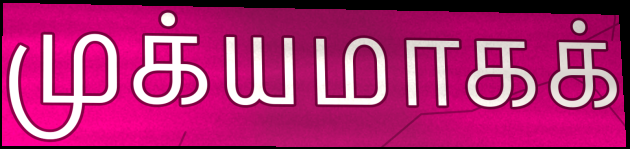
முக்யமாகக்